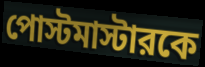
পোস্টমাস্টারকে